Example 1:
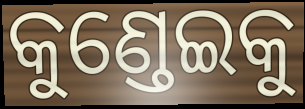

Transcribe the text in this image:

କୁଣ୍ଡେଇକୁ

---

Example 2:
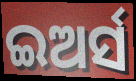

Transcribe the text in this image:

ଇଅର୍ସ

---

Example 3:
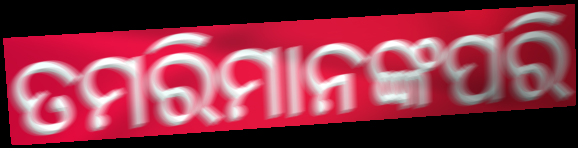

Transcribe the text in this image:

ତମରିମାନଙ୍କପରି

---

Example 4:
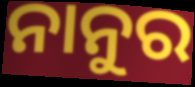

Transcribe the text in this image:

ନାନୁର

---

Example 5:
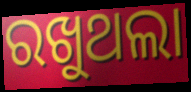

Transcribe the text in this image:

ରଖୁଥଲା